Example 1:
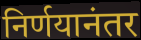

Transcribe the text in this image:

निर्णयानंतर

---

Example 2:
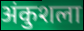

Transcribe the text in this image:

अंकुशला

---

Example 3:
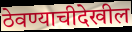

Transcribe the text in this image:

ठेवण्याचीदेखील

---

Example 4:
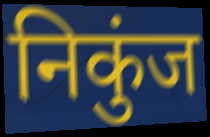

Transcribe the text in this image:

निकुंज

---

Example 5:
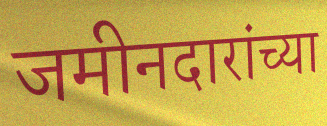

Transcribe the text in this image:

जमीनदारांच्या